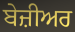
ਬੇਜ਼ੀਅਰ